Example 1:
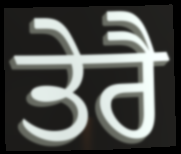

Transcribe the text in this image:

ਤੇਰੈ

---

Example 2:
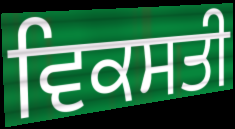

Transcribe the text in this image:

ਵਿਕਸਤੀ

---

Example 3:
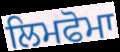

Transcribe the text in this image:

ਲਿਮਫੋਮਾ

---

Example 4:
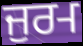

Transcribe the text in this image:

ਜੁਰ੍ਮ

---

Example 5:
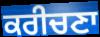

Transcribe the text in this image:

ਕਰੀਚਣਾ